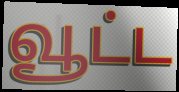
வூட்ட